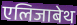
एलिजाबेथ